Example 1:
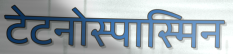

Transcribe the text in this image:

टेटनोस्पास्मिन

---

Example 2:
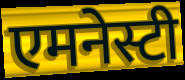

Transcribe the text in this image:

एमनेस्टी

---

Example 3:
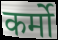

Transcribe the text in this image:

कर्मो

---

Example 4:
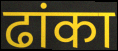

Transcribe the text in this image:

ढांका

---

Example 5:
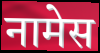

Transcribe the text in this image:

नामेस